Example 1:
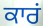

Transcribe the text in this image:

ਕਾਰਂ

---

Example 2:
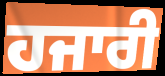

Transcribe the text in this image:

ਹਜਾਰੀ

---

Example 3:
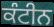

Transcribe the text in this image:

ਕੰਟੀਨ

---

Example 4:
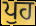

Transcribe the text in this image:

ਪੁਹ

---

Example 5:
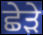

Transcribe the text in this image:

ਛੇੜੇ